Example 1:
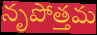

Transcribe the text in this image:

నృపోత్తమ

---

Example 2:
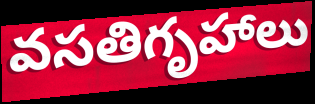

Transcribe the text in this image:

వసతిగృహాలు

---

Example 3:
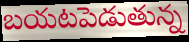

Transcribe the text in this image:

బయటపెడుతున్న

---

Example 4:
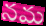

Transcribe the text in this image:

నమ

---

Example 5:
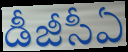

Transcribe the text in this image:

డీజీసీఏ